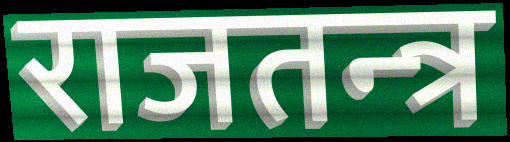
राजतन्त्र